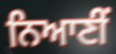
ਨਿਆਣੀਂ